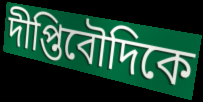
দীপ্তিবৌদিকে